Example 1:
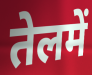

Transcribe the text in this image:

तेलमें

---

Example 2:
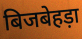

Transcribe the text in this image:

बिजबेहड़ा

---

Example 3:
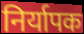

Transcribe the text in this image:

निर्यापक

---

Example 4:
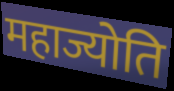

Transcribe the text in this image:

महाज्योति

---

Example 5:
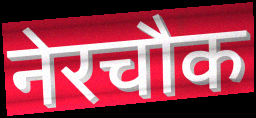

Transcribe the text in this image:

नेरचौक